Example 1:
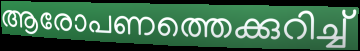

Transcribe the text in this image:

ആരോപണത്തെക്കുറിച്ച്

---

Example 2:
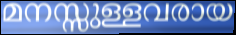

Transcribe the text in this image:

മനസ്സുള്ളവരായ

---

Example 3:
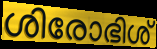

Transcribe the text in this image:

ശിരോഭിശ്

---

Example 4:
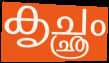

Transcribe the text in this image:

കൃച്ഛ്രം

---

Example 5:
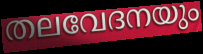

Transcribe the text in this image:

തലവേദനയും